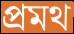
প্রমথ